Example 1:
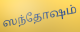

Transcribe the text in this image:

ஸந்தோஷம்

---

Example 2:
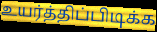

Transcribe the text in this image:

உயர்த்திப்பிடிக்க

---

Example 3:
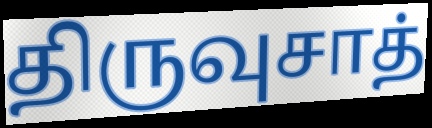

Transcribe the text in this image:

திருவுசாத்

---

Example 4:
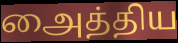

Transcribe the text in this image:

அைத்திய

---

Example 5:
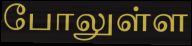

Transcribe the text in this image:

போலுள்ள